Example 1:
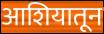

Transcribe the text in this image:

आशियातून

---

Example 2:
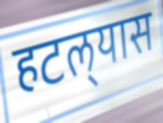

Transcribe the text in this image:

हटल्यास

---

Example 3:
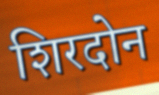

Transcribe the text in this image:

शिरदोन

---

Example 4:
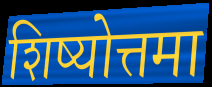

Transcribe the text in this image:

शिष्योत्तमा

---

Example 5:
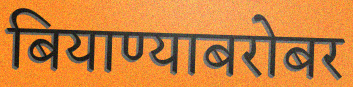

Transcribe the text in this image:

बियाण्याबरोबर